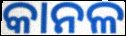
କାନଳ